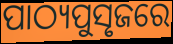
ପାଠ୍ୟପୁସୃଜରେ